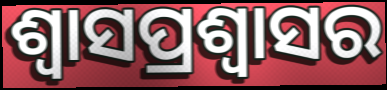
ଶ୍ଵାସପ୍ରଶ୍ଵାସର